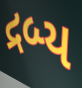
દ્રબ્ય